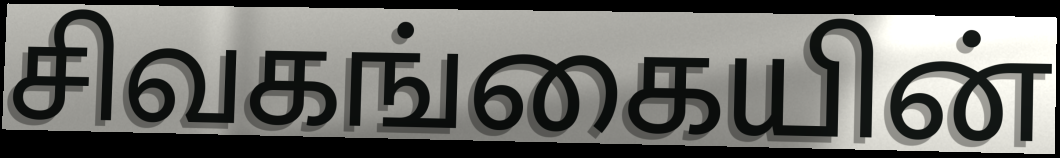
சிவகங்கையின்